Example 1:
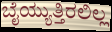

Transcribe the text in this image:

ಬೈಯ್ಯುತ್ತಿರಲಿಲ್ಲ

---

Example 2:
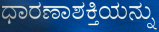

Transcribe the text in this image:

ಧಾರಣಾಶಕ್ತಿಯನ್ನು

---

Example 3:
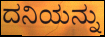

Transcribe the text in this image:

ದನಿಯನ್ನು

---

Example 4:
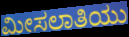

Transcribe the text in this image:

ಮೀಸಲಾತಿಯು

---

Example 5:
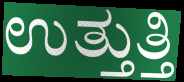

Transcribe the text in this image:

ಉತ್ತುತ್ತಿ